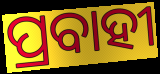
ପ୍ରବାହୀ